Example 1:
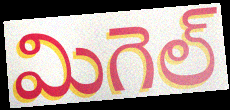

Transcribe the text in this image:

మిగెల్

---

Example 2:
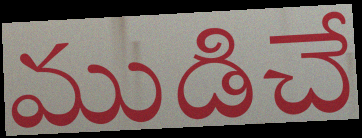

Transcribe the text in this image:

ముడిచే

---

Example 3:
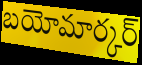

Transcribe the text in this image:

బయోమార్కర్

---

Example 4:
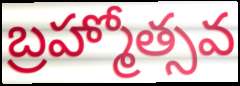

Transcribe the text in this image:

బ్రహ్మోత్సవ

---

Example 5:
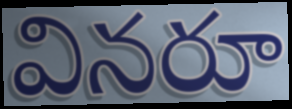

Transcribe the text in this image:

వినరూ